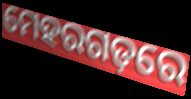
ମେହରଗଡ଼ରେ